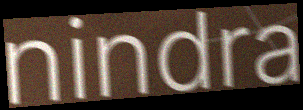
nindra